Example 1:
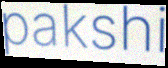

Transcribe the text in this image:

pakshi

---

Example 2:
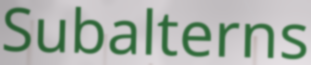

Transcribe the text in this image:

Subalterns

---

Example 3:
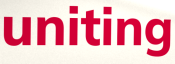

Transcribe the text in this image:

uniting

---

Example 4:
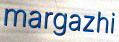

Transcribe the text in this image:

margazhi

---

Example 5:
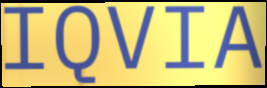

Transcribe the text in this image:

IQVIA